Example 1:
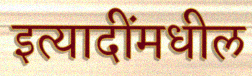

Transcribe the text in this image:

इत्यादींमधील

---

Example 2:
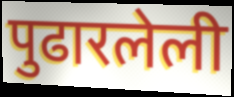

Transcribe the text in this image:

पुढारलेली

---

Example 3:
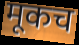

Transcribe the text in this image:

मूकच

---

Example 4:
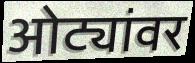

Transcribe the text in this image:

ओट्यांवर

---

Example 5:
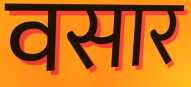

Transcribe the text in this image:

वसार